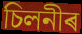
চিলনীৰ